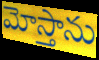
మోస్తాను